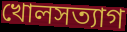
খোলসত্যাগ